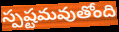
స్పష్టమవుతోంది